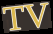
TV